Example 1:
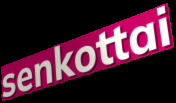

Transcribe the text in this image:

senkottai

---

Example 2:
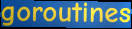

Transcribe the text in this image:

goroutines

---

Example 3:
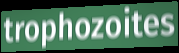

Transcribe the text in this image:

trophozoites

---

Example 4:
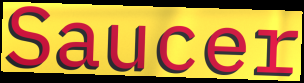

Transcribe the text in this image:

Saucer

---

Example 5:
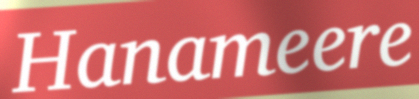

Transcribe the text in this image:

Hanameere